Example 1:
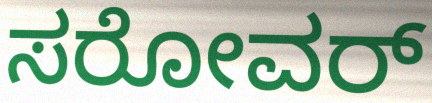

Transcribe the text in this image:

ಸರೋವರ್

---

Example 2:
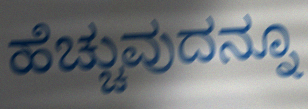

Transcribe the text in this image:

ಹೆಚ್ಚುವುದನ್ನೂ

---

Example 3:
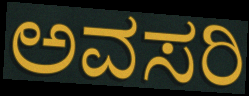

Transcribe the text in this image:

ಅವಸರಿ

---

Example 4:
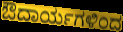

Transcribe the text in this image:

ಔದಾರ್ಯಗಳಿಂದ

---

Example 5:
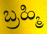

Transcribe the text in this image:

ಬ್ರಹ್ಮಿ